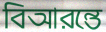
বিআরন্তে